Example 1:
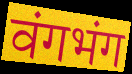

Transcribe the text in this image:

वंगभंग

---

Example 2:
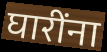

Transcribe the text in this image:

घारींना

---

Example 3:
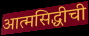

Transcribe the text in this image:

आत्मसिद्धीची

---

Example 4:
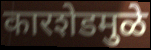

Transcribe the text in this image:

कारशेडमुळे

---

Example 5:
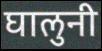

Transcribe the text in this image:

घालुनी